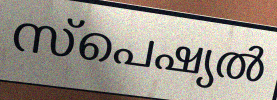
സ്‌പെഷ്യൽ